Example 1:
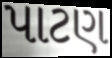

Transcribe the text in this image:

પાટણ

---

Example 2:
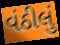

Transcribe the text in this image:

વંઠીલું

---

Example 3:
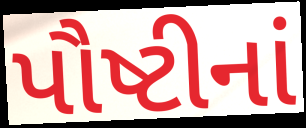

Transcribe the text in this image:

પૌષ્ટીનાં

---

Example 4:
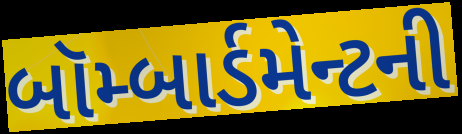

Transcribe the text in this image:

બૉમ્બાર્ડમેન્ટની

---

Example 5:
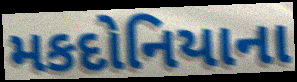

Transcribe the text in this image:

મકદોનિયાના